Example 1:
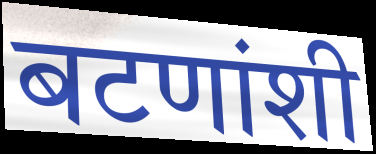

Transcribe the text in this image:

बटणांशी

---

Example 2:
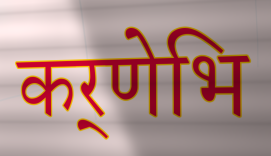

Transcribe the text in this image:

कर्णेभि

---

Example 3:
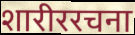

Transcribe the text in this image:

शारीररचना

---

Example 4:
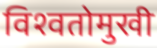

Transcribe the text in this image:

विश्वतोमुखी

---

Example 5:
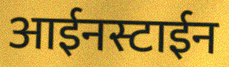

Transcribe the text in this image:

आईनस्टाईन